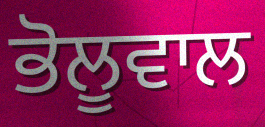
ਭੋਲੂਵਾਲ